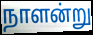
நாளன்று